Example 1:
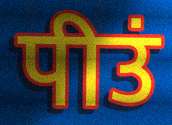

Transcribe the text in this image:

पीउं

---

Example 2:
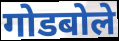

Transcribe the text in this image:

गोडबोले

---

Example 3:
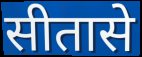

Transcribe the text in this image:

सीतासे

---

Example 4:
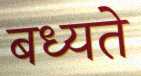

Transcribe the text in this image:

बध्यते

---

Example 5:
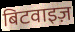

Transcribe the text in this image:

बिटवाइज़